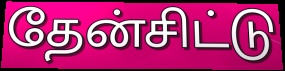
தேன்சிட்டு